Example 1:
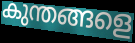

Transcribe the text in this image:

കുന്തങ്ങളെ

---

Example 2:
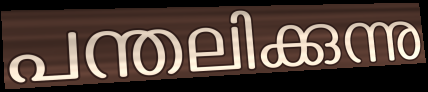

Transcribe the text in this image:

പന്തലിക്കുന്നു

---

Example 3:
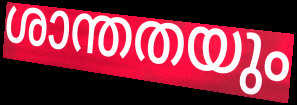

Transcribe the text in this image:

ശാന്തതയും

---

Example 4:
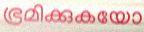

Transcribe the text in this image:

ഭ്രമിക്കുകയോ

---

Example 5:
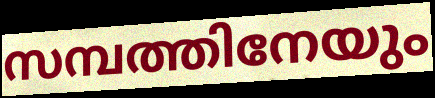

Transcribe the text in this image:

സമ്പത്തിനേയും